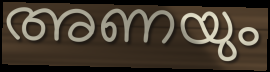
അണയും